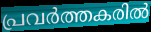
പ്രവർത്തകരിൽ